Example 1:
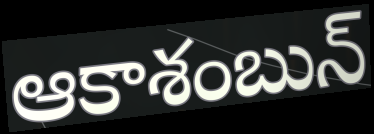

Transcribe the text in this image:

ఆకాశంబున్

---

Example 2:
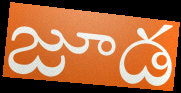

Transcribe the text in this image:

జూడ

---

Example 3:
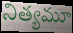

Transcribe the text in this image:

నిత్యమూ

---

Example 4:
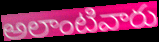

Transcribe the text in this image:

అలాంటివారు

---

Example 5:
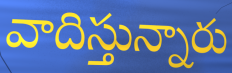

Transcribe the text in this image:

వాదిస్తున్నారు